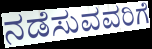
ನಡೆಸುವವರಿಗೆ